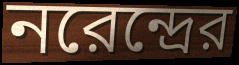
নরেন্দ্রের